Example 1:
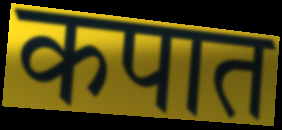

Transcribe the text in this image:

कपात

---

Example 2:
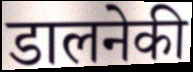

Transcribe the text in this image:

डालनेकी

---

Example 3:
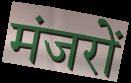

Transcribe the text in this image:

मंजरों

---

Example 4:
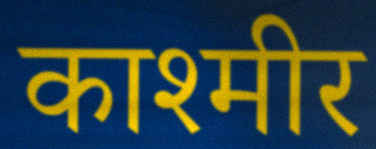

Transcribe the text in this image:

काश्मीर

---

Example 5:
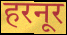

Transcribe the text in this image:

हरनूर